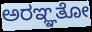
ಅರಞ್ಞತೋ